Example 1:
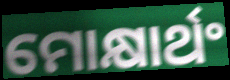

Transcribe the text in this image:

ମୋକ୍ଷାର୍ଥଂ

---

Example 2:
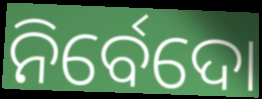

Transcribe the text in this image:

ନିର୍ବେଦୋ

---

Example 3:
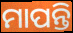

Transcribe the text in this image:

ମାପନ୍ତି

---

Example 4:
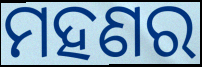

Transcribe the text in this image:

ମହଣର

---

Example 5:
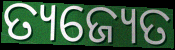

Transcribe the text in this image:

ତ୍ୟଜ୍ୟେତ